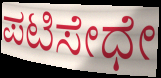
ಪಟಿಸೇಧೇ